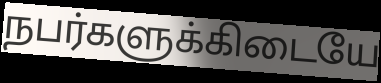
நபர்களுக்கிடையே